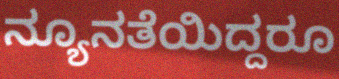
ನ್ಯೂನತೆಯಿದ್ದರೂ